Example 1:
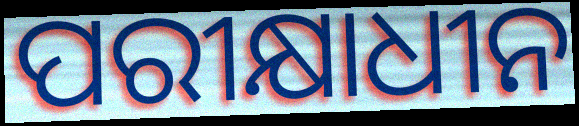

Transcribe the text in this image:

ପରୀକ୍ଷାଧୀନ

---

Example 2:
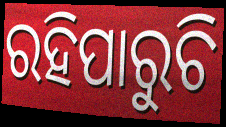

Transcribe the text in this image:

ରହିପାରୁଚି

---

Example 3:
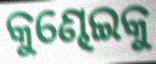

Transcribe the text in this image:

କୁଣ୍ଢେଇକୁ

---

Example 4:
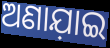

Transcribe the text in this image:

ଅଣାଯ଼ାଇ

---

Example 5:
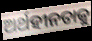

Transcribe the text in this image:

ଅର୍ଥହୀନତାକୁ